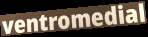
ventromedial